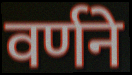
वर्णने